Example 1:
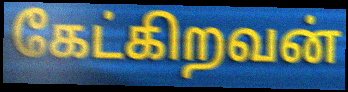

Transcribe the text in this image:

கேட்கிறவன்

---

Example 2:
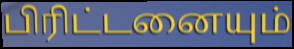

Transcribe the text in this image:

பிரிட்டனையும்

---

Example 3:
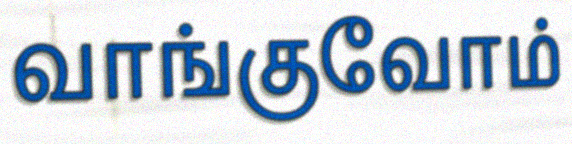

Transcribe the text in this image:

வாங்குவோம்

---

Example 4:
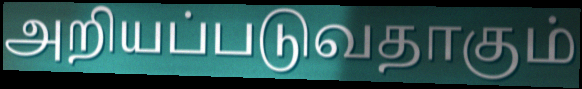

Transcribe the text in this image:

அறியப்படுவதாகும்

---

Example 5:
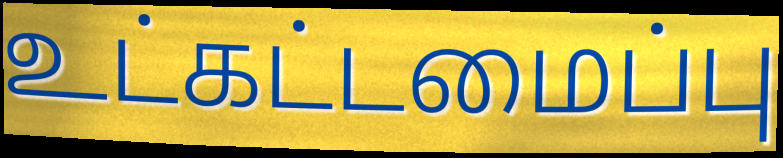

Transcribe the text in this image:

உட்கட்டமைப்பு